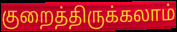
குறைத்திருக்கலாம்